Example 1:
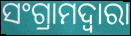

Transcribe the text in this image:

ସଂଗ୍ରାମଦ୍ଵାରା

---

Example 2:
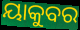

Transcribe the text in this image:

ୟାକୁବର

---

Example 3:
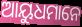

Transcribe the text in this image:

ଆୟୁଧମାନେ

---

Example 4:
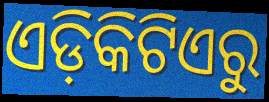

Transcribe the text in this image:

ଏଡ଼ିକିଟିଏରୁ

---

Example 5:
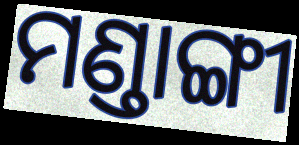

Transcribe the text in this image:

ମଣ୍ଡାଙ୍ଗୀ